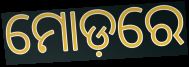
ମୋଡ଼ରେ